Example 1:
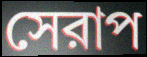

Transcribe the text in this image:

সেরাপ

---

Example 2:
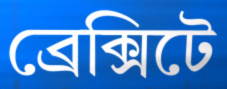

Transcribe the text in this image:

ব্রেক্সিটে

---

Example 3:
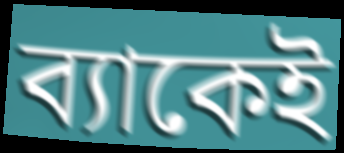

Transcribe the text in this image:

ব্যাকেই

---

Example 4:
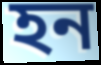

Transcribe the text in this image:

হন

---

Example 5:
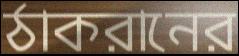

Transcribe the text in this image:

ঠাকরানের